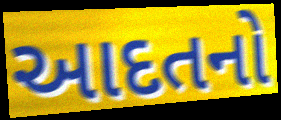
આદતનો